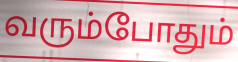
வரும்போதும்